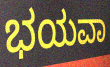
ಭಯವಾ